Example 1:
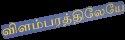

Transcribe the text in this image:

விளம்பரத்திலேயே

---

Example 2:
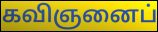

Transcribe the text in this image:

கவிஞனைப்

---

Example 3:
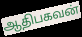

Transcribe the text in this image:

ஆதிபகவன்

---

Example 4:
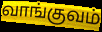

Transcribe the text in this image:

வாங்குவம்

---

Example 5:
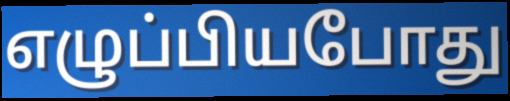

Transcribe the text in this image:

எழுப்பியபோது